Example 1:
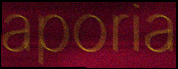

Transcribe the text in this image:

aporia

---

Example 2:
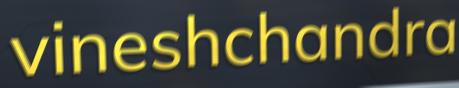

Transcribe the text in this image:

vineshchandra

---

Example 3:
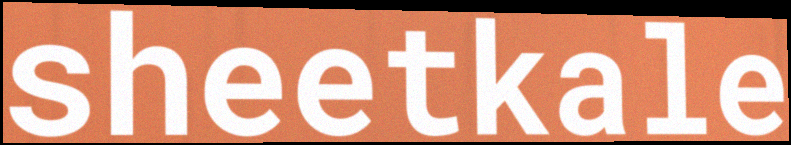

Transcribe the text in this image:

sheetkale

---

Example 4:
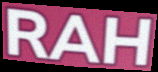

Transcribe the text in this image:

RAH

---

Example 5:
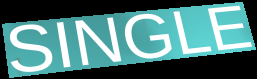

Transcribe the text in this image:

SINGLE